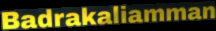
Badrakaliamman